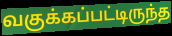
வகுக்கப்பட்டிருந்த